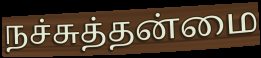
நச்சுத்தன்மை